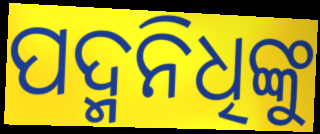
ପଦ୍ମନିଧିଙ୍କୁ